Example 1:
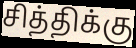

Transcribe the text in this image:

சித்திக்கு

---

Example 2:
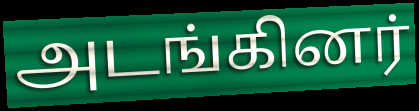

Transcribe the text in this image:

அடங்கினர்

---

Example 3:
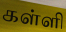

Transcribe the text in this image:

கள்ளி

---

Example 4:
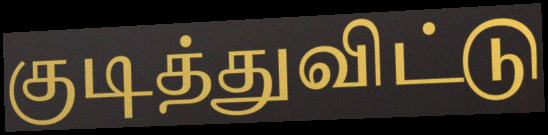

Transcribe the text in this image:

குடித்துவிட்டு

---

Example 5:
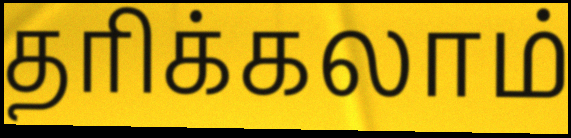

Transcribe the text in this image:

தரிக்கலாம்